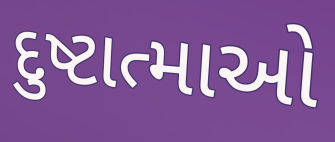
દુષ્ટાત્માઓ